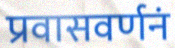
प्रवासवर्णनं